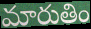
మారుతిం